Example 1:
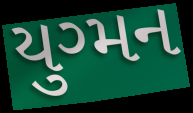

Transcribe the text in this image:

યુગ્મન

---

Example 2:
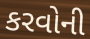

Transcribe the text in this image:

કરવોની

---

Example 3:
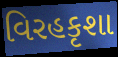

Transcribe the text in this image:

વિરહકૃશા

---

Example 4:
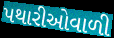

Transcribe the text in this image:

પથારીઓવાળી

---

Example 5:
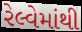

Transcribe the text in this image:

રેલ્વેમાંથી